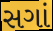
સગાં